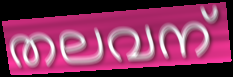
തലവന്